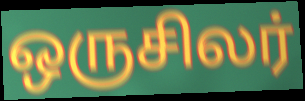
ஒருசிலர்